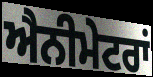
ਐਨੀਮੇਟਰਾਂ